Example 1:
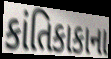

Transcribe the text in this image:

કાંતિકાકાના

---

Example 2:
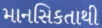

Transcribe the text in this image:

માનસિકતાથી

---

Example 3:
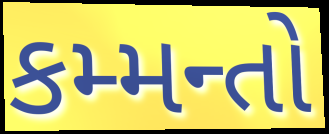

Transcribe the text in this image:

કમ્મન્તો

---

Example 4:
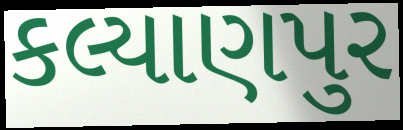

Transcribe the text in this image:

કલ્યાણપુર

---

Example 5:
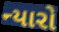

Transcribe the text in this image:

ન્યારો